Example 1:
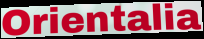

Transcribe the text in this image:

Orientalia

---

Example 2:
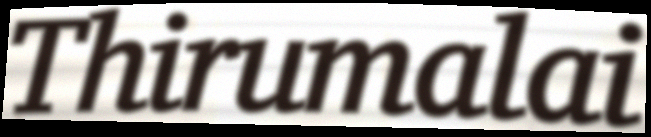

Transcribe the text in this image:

Thirumalai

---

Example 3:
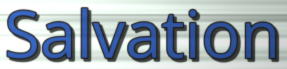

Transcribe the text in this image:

Salvation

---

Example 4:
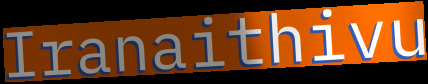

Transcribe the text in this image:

Iranaithivu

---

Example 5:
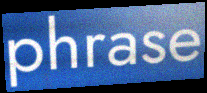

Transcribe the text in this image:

phrase